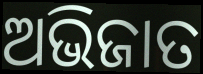
ଅଭିଜାତ